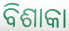
ବିଶାକା